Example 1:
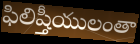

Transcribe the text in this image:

ఫిలిష్తీయులంతా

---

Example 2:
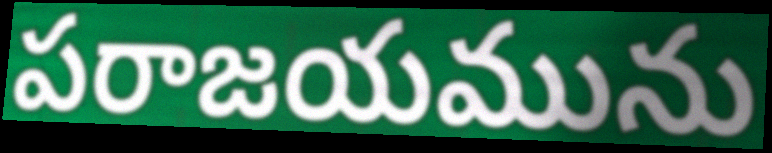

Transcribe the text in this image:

పరాజయమును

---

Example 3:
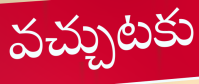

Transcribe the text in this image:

వచ్చుటకు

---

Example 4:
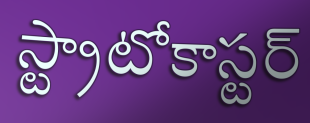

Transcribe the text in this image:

స్ట్రాటోకాస్టర్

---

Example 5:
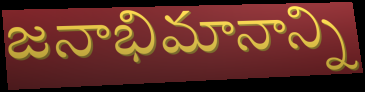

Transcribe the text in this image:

జనాభిమానాన్ని